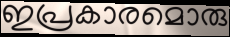
ഇപ്രകാരമൊരു